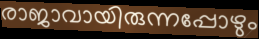
രാജാവായിരുന്നപ്പോഴും